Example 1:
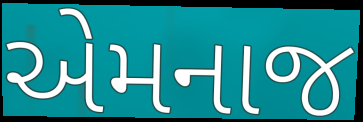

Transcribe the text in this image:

એમનાજ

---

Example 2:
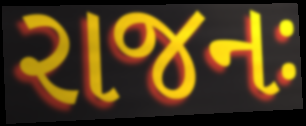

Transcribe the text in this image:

રાજનઃ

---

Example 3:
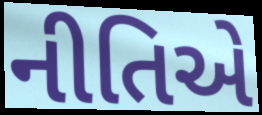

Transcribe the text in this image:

નીતિએ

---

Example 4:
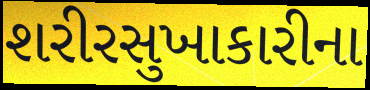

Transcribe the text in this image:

શરીરસુખાકારીના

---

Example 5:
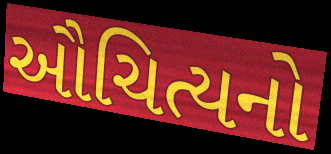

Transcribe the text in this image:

ઔચિત્યનો